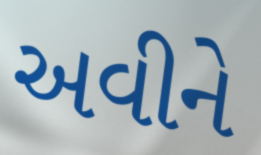
અવીને